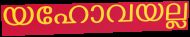
യഹോവയല്ല